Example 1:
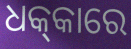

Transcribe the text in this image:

ଧକ୍‌କାରେ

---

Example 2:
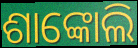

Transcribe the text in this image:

ଶାଙ୍କୋଲି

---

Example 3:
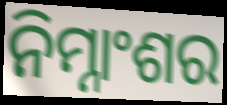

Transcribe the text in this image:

ନିମ୍ନାଂଶର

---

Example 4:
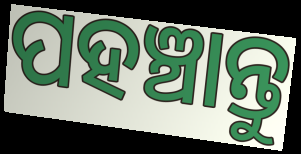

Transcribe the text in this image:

ପହଞ୍ଚାନ୍ତୁ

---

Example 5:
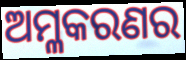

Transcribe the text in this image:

ଅମ୍ଳକରଣର